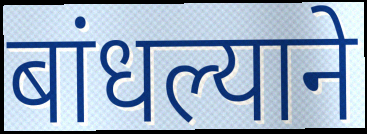
बांधल्याने